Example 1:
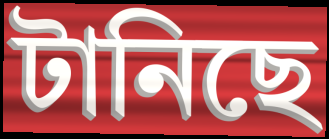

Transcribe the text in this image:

টানিছে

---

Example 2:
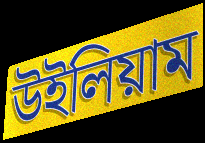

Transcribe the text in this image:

উইলিয়াম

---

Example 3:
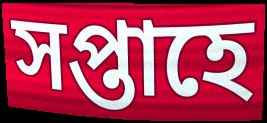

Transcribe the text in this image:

সপ্তাহে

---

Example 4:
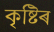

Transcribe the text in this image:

কৃষ্টিৰ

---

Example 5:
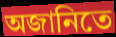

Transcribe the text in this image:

অজানিতে